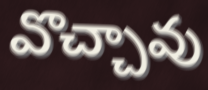
వొచ్చావు